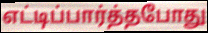
எட்டிப்பார்த்தபோது